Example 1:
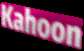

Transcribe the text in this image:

Kahoon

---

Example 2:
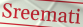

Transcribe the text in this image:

Sreemati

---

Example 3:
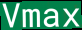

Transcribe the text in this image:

Vmax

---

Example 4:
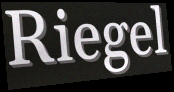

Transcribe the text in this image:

Riegel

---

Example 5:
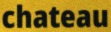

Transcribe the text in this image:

chateau